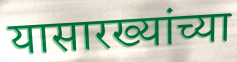
यासारख्यांच्या